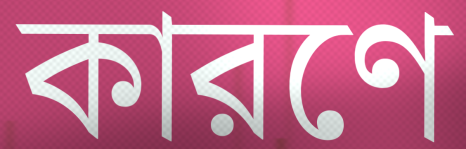
কারণে